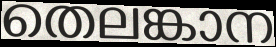
തെലങ്കാന